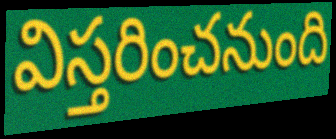
విస్తరించనుంది